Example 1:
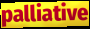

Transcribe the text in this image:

palliative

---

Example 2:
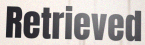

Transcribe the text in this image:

Retrieved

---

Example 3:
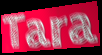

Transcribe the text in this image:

Tara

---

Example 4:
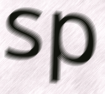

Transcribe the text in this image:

sp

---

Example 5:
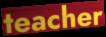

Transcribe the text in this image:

teacher